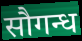
सौगन्ध